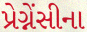
પ્રેગ્નેંસીના